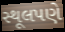
સ્થૂલપણે